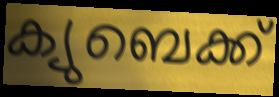
ക്യുബെക്ക്